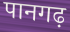
पानगढ़